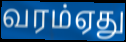
வரம்ஏது